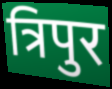
त्रिपुर